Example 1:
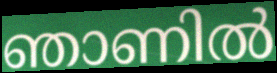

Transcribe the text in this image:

ഞാണിൽ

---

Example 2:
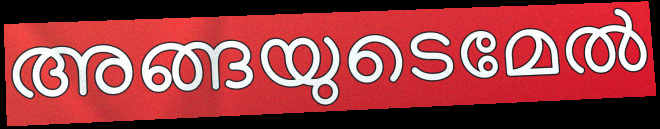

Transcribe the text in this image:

അങ്ങയുടെമേൽ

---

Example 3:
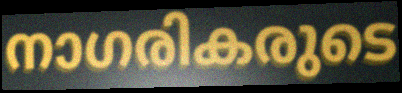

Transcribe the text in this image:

നാഗരികരുടെ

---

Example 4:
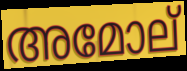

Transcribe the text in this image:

അമോല്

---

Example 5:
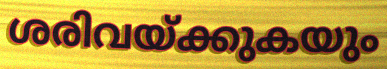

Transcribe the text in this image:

ശരിവയ്ക്കുകയും